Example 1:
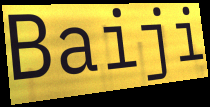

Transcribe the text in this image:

Baiji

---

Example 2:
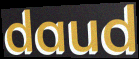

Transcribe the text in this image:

daud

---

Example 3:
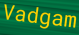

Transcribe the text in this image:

Vadgam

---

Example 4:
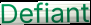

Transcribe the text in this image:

Defiant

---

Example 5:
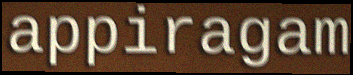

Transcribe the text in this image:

appiragam